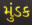
મુંડક